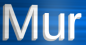
Mur